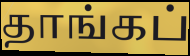
தாங்கப்